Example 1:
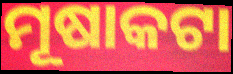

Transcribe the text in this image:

ମୂଷାକଟା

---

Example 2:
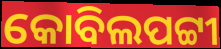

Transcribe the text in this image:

କୋବିଲପଟ୍ଟୀ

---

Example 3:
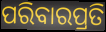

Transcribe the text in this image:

ପରିବାରପ୍ରତି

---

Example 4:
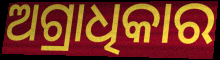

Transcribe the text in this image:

ଅଗ୍ରାଧିକାର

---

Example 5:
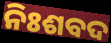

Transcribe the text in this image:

ନିଃଶବଦ